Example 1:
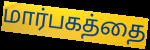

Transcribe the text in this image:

மார்பகத்தை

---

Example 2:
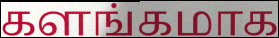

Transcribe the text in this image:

களங்கமாக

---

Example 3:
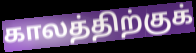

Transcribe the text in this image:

காலத்திற்குக்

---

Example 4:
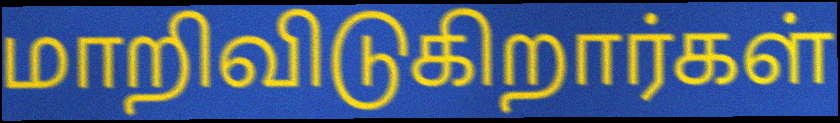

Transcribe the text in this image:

மாறிவிடுகிறார்கள்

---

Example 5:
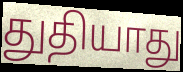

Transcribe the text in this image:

துதியாது